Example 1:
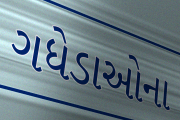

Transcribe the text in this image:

ગધેડાઓના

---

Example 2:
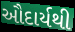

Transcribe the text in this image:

ઔદાર્યથી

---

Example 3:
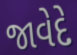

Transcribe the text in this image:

જાવેદે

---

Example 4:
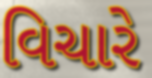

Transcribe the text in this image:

વિચારે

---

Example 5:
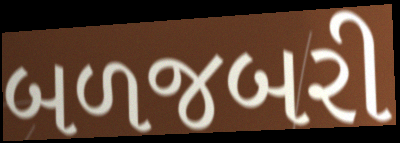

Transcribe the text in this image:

બળજબરી